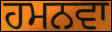
ਹਮਨਵਾ